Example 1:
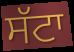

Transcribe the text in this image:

ਸੱਟਾ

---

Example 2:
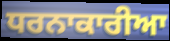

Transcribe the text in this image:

ਧਰਨਾਕਾਰੀਆ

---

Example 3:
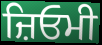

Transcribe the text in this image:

ਜ਼ਿਓਮੀ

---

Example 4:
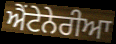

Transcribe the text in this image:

ਐਂਟੇਨੇਰੀਆ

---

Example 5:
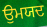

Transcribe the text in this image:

ਉਮਯਦ